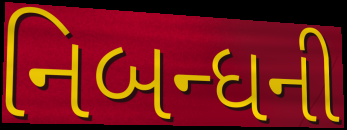
નિબન્ધની